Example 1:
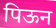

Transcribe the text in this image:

पिऊन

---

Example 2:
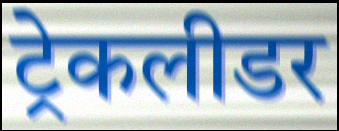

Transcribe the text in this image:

ट्रेकलीडर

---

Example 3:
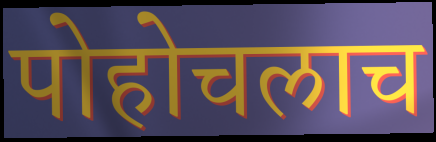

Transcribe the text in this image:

पोहोचलाच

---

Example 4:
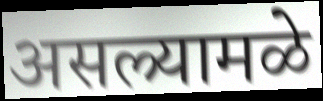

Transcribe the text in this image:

असल्यामळे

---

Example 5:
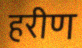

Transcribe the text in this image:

हरीण